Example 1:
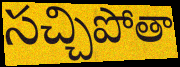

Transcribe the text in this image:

సచ్చిపోతా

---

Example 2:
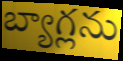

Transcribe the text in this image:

బ్యాగ్లను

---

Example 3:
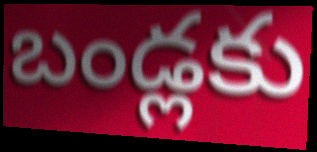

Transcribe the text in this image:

బండ్లకు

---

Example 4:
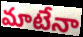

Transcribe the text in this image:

మాటేనా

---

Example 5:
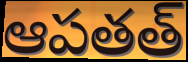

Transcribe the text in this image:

ఆపతత్